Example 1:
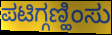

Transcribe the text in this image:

ಪಟಿಗ್ಗಣ್ಹಿಂಸು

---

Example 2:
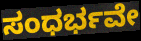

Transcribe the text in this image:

ಸಂಧರ್ಭವೇ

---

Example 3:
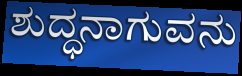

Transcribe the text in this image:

ಶುದ್ಧನಾಗುವನು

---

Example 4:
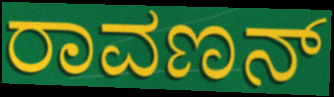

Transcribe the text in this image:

ರಾವಣನ್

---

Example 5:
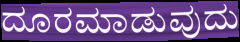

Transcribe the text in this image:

ದೂರಮಾಡುವುದು